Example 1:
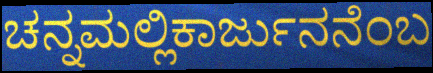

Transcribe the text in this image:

ಚನ್ನಮಲ್ಲಿಕಾರ್ಜುನನೆಂಬ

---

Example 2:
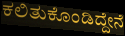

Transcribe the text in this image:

ಕಲಿತುಕೊಂಡಿದ್ದೇನೆ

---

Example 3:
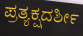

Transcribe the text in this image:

ಪ್ರತ್ಯಕ್ಷದರ್ಶೀ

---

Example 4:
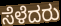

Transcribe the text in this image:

ಸೆಳೆದರು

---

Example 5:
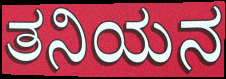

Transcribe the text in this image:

ತನಿಯನ